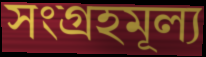
সংগ্রহমূল্য